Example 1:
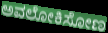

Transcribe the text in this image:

ಅವಲೋಕಿಸೋಣ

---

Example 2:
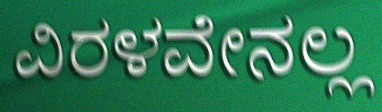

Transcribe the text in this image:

ವಿರಳವೇನಲ್ಲ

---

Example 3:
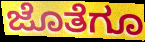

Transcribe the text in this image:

ಜೊತೆಗೂ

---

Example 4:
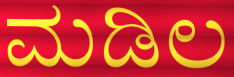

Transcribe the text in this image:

ಮಡಿಲ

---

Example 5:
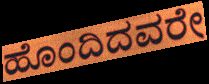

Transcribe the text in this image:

ಹೊಂದಿದವರೇ